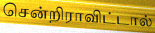
சென்றிராவிட்டால்